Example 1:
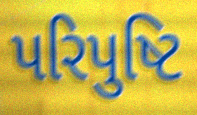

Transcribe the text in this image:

પરિપુષ્ટિ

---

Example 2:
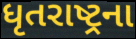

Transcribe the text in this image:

ધૃતરાષ્ટ્રના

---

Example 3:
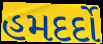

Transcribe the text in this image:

હમદર્દો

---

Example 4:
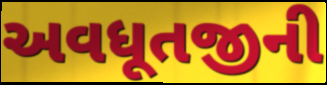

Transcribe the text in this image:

અવધૂતજીની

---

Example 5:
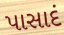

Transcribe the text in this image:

પાસાદં